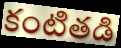
కంటితడి